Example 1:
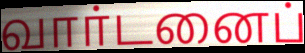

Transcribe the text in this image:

வார்டனைப்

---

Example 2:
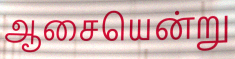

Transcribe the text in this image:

ஆசையென்று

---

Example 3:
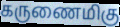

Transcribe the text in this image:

கருணைமிகு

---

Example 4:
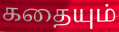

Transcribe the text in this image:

கதையும்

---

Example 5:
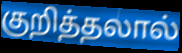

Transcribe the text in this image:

குறித்தலால்